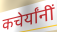
कचेर्यांनीं